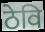
ठेवि